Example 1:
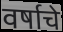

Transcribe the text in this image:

वर्षाचे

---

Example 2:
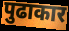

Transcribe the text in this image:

पुढाकार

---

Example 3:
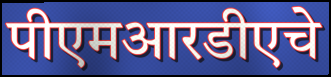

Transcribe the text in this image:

पीएमआरडीएचे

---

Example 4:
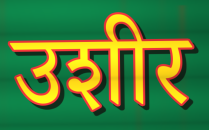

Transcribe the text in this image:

उशीर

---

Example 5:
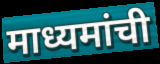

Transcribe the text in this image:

माध्यमांची